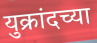
युक्रांदच्या